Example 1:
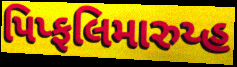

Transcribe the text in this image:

પિપ્ફલિમારુય્હ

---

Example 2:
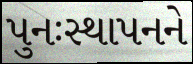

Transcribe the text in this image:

પુનઃસ્થાપનને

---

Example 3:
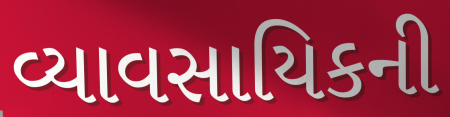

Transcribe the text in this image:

વ્યાવસાયિકની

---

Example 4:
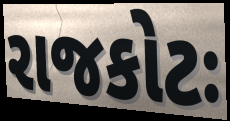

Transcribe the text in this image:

રાજકોટઃ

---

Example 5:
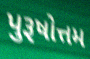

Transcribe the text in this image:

પુરૂષોત્તમ